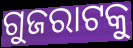
ଗୁଜରାଟକୁ